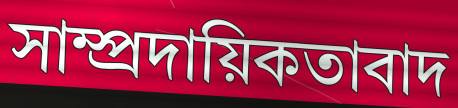
সাম্প্ৰদায়িকতাবাদ